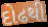
દોઢથી